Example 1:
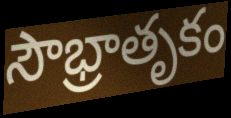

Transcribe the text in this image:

సౌభ్రాతృకం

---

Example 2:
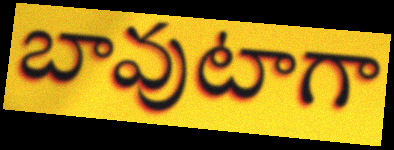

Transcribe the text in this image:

బావుటాగా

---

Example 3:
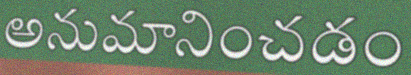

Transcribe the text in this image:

అనుమానించడం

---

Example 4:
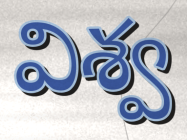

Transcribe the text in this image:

విశ్వ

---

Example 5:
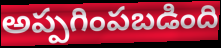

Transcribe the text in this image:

అప్పగింపబడింది